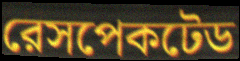
রেসপেকটেড